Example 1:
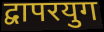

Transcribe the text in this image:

द्वापरयुग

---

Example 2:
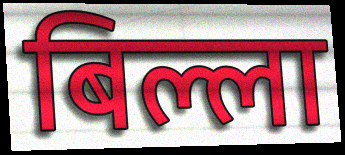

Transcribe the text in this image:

बिल्ला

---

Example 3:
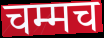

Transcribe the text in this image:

चम्मच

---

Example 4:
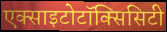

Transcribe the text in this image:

एक्साइटोटॉक्सिसिटी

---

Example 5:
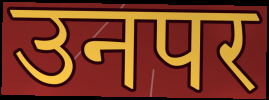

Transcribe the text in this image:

उनपर